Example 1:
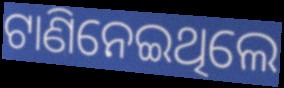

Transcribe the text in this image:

ଟାଣିନେଇଥିଲେ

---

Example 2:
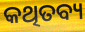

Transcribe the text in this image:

କଥିତବ୍ୟ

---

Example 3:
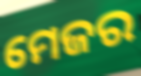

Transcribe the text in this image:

ମେଜର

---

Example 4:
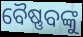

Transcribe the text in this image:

ବୈଷ୍ଣବଙ୍କୁ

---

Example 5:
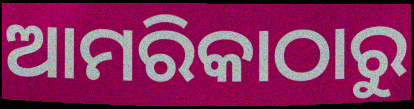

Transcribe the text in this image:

ଆମରିକାଠାରୁ